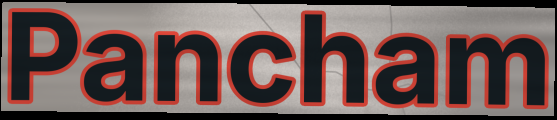
Pancham